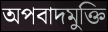
অপবাদমুক্তি